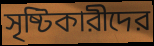
সৃষ্টিকারীদের